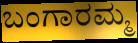
ಬಂಗಾರಮ್ಮ